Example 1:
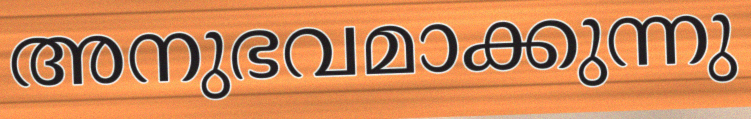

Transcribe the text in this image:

അനുഭവമാക്കുന്നു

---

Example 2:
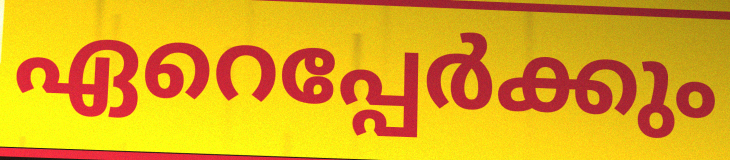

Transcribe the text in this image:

ഏറെപ്പേർക്കും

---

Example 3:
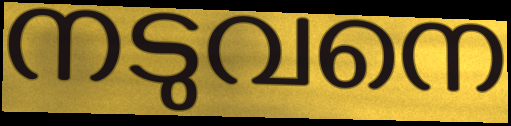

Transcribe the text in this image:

നടുവനെ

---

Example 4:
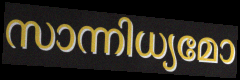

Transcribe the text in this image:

സാന്നിധ്യമോ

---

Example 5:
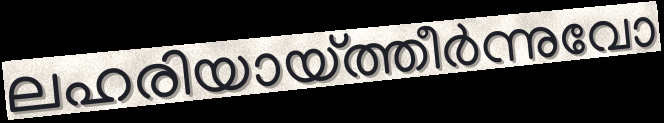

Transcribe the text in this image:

ലഹരിയായ്ത്തീർന്നുവോ